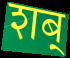
शब्